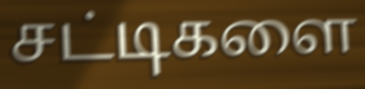
சட்டிகளை